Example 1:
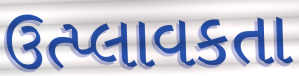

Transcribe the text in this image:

ઉત્પ્લાવકતા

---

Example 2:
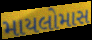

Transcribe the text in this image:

માયલોમાસ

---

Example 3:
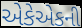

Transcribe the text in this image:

એકેએકની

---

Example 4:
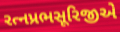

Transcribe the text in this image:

રત્નપ્રભસૂરિજીએ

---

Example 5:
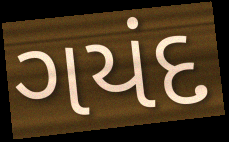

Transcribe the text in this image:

ગયંદ